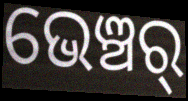
ଭେଞ୍ଚର୍